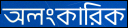
অলংকারিক